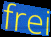
frei